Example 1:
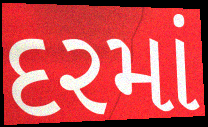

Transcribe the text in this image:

દરમાં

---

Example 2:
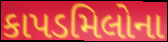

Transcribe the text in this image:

કાપડમિલોના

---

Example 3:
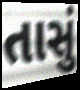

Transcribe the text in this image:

તાસું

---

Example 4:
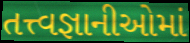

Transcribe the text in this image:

તત્ત્વજ્ઞાનીઓમાં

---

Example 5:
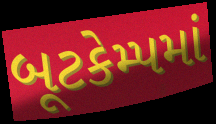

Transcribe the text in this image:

બૂટકેમ્પમાં